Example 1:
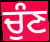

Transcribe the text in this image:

ਚੁੰਣ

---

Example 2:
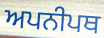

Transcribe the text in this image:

ਅਪਨੀਪਥ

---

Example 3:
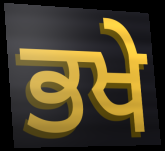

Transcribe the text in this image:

ਭਖੇ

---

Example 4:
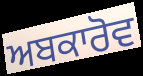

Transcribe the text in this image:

ਅਬਕਾਰੋਵ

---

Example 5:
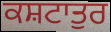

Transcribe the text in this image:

ਕਸ਼ਟਾਤੁਰ